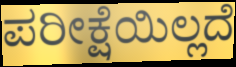
ಪರೀಕ್ಷೆಯಿಲ್ಲದೆ